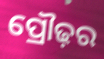
ପ୍ରୌଢ଼ର